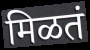
मिळतं